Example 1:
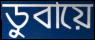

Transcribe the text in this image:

ডুবায়ে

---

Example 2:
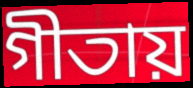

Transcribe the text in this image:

গীতায়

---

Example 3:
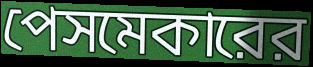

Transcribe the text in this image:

পেসমেকারের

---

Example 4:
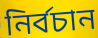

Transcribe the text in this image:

নির্বচান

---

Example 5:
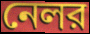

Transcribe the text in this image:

নেলর